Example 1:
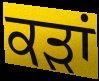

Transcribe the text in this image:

ਕੜਾਂ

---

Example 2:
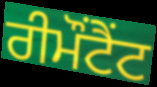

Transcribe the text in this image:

ਰੀਮੌਂਟੈਂਟ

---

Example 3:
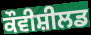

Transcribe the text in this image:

ਕੌਵੀਸ਼ੀਲਡ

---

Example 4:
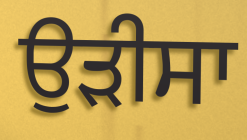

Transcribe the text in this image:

ਉਡ਼ੀਸਾ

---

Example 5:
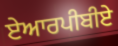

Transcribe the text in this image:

ਏਆਰਪੀਬੀਏ